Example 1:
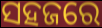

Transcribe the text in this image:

ସହଜରେ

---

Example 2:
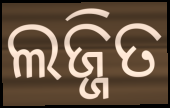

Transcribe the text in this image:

ଲଜ୍ଜିତ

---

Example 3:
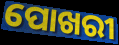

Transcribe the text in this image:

ପୋଖରୀ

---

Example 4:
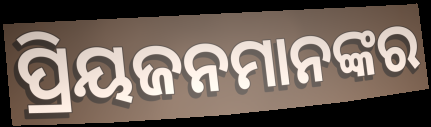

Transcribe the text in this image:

ପ୍ରିୟଜନମାନଙ୍କର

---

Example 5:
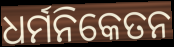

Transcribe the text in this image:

ଧର୍ମନିକେତନ